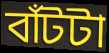
বাঁটটা